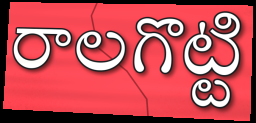
రాలగొట్టి